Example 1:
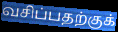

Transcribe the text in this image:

வசிப்பதற்குக்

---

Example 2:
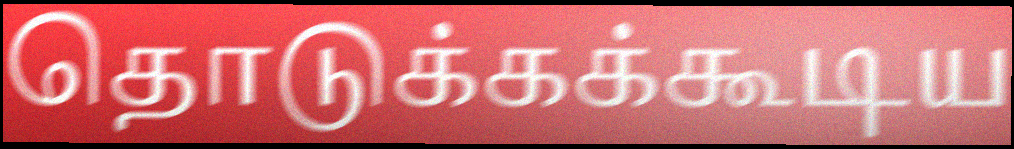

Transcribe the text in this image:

தொடுக்கக்கூடிய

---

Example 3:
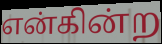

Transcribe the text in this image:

என்கின்ற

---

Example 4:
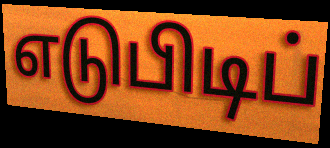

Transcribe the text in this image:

எடுபிடிப்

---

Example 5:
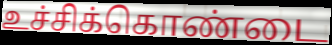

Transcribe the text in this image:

உச்சிக்கொண்டை